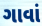
ગાવાં